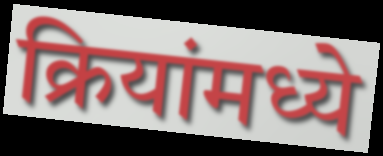
क्रियांमध्ये